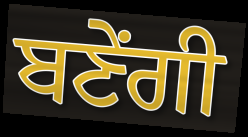
ਬਣੇਂਗੀ